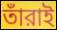
তাঁরাই